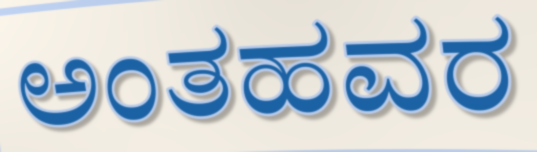
ಅಂತಹವರ